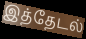
இத்தேடல்